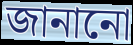
জানানো